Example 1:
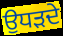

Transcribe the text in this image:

ਉਧੜਦੇ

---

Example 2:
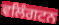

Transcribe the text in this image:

ਵਲਿੰਗਟਨ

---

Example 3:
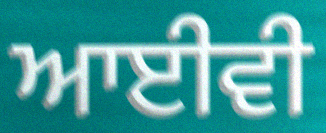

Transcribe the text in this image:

ਆਈਵੀ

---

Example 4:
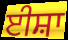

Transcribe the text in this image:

ਈਸ਼ਾ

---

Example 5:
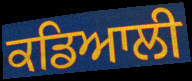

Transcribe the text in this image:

ਕਡਿਆਲੀ